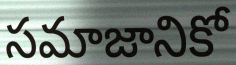
సమాజానికో